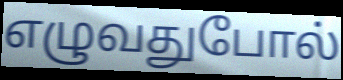
எழுவதுபோல்